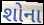
શોના